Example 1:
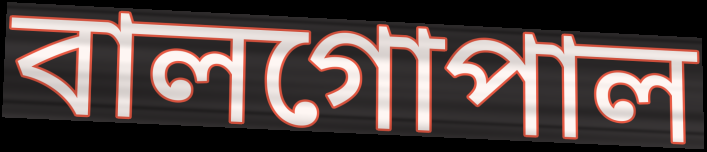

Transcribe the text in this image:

বালগোপাল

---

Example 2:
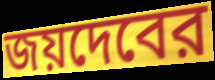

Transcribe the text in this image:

জয়দেবের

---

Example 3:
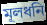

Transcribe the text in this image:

মূলধনি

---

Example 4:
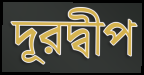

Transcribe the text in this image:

দূরদ্বীপ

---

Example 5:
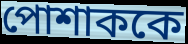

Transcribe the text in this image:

পোশাককে